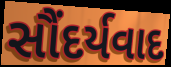
સૌંદર્યવાદ